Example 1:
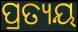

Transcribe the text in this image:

ପ୍ରତ୍ଯୟ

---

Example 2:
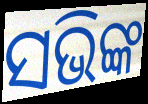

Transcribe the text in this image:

ସଭିଙ୍କ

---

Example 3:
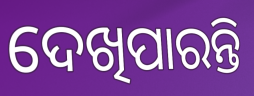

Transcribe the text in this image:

ଦେଖିପାରନ୍ତି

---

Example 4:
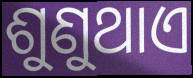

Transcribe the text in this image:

ଶୁଣୁଥାଏ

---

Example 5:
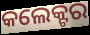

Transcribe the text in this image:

କଲେକ୍ଟର